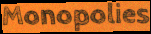
Monopolies